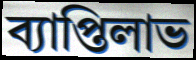
ব্যাপ্তিলাভ